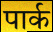
पार्क